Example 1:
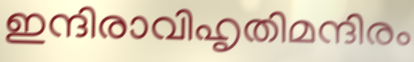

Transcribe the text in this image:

ഇന്ദിരാവിഹൃതിമന്ദിരം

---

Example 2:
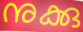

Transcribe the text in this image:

നുക്കു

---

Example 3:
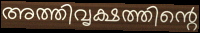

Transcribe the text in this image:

അത്തിവൃക്ഷത്തിന്റെ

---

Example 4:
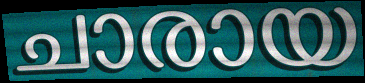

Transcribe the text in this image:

ചാരായ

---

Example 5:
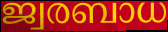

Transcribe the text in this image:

ജ്വരബാധ